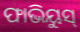
ଫାଭିୟୁସ୍